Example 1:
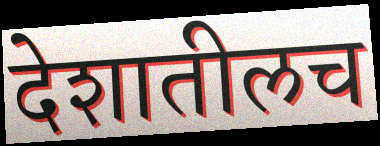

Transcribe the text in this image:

देशातीलच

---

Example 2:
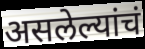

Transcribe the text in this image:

असलेल्यांचं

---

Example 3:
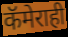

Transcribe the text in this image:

कॅमेराही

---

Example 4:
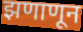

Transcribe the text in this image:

झणाणून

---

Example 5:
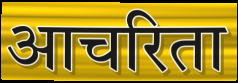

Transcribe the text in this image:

आचरिता